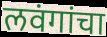
लवंगांचा